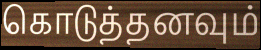
கொடுத்தனவும்